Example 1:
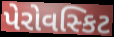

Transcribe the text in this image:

પેરોવસ્કિટ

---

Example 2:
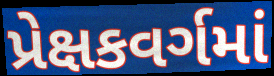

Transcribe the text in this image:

પ્રેક્ષકવર્ગમાં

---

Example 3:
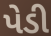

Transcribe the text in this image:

પેડી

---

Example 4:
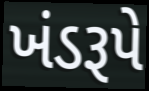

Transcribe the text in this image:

ખંડરૂપે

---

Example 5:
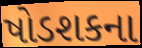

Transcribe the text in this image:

ષોડશકના